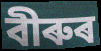
বীৰুৰ